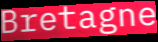
Bretagne